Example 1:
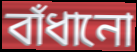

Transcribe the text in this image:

বাঁধানো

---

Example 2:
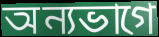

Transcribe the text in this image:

অন্যভাগে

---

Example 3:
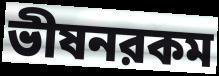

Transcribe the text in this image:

ভীষনরকম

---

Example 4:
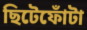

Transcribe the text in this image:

ছিটেফোঁটা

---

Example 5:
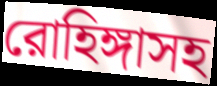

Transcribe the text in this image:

রোহিঙ্গাসহ